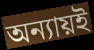
অন্যায়ই